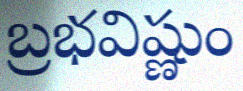
బ్రభవిష్ణుం